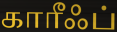
காரீஃப்